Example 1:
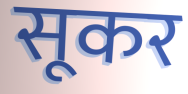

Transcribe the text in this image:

सूकर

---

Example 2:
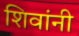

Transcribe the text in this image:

शिवांनी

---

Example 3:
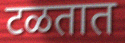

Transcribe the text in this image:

टळतात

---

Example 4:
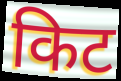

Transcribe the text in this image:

किट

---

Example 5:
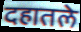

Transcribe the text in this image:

दहातले